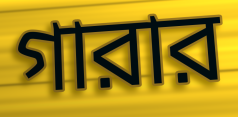
গারার